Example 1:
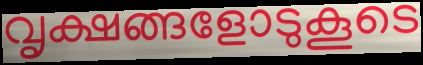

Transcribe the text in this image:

വൃക്ഷങ്ങളോടുകൂടെ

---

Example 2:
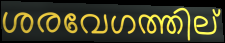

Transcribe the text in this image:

ശരവേഗത്തില്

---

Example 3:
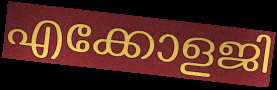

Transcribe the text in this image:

എക്കോളജി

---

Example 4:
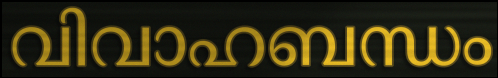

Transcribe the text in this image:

വിവാഹബന്ധം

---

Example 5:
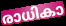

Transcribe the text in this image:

രാധികാ